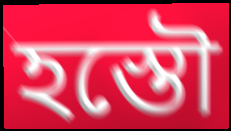
হস্তৌ